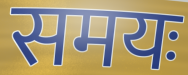
समयः